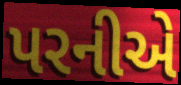
પરનીએ